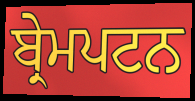
ਬ੍ਰੇਮਪਟਨ